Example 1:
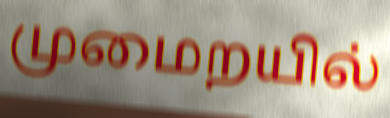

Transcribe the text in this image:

முமைறயில்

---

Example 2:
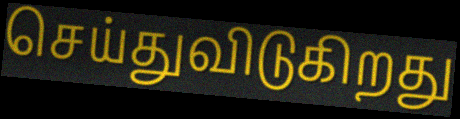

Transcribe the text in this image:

செய்துவிடுகிறது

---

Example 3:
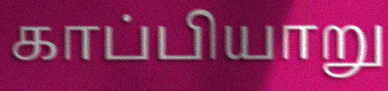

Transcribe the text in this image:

காப்பியாறு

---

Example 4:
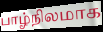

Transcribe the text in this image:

பாழ்நிலமாக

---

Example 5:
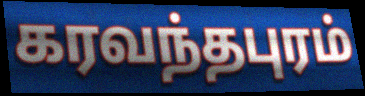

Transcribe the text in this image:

கரவந்தபுரம்